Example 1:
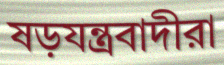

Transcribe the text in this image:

ষড়যন্ত্রবাদীরা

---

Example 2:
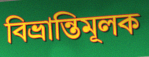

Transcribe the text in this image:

বিভ্রান্তিমূলক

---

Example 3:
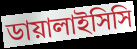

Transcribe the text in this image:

ডায়ালাইসিসি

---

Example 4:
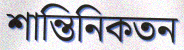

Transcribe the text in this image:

শান্তিনিকতন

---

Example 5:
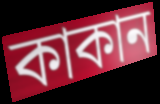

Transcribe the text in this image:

কাকান